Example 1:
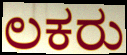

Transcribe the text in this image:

ಲಕರು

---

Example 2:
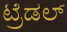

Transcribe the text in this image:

ಟ್ರೆಡಲ್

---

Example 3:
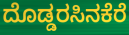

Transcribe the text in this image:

ದೊಡ್ಡರಸಿನಕೆರೆ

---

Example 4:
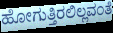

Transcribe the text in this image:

ಹೋಗುತ್ತಿರಲಿಲ್ಲವಂತೆ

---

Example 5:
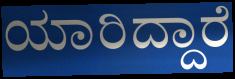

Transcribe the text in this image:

ಯಾರಿದ್ದಾರೆ